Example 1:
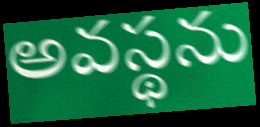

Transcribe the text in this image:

అవస్థను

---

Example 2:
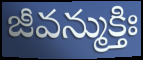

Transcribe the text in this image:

జీవన్ముక్తిః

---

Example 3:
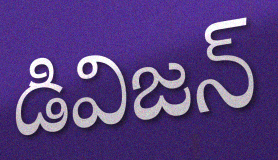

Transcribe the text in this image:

డివిజన్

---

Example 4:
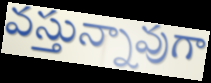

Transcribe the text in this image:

వస్తున్నావుగా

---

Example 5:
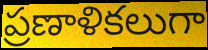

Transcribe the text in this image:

ప్రణాళికలుగా